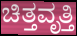
ಚಿತ್ತವೃತ್ತಿ